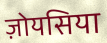
ज़ोयसिया